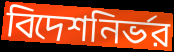
বিদেশনির্ভর